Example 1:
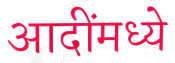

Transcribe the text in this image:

आदींमध्ये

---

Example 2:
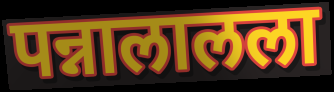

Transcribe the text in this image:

पन्नालालला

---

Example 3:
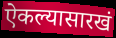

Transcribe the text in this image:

ऐकल्यासारखं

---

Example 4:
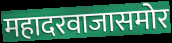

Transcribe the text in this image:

महादरवाजासमोर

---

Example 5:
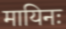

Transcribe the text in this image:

मायिनः